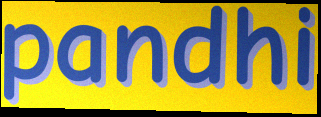
pandhi